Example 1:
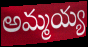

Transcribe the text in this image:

అమ్మయ్య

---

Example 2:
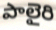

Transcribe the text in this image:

పాలైరి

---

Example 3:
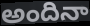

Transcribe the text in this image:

అందినా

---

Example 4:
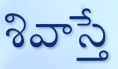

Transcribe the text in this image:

శివాస్తే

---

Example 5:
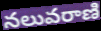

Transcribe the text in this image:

నలువరాణి